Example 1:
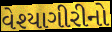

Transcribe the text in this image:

વેશ્યાગીરીનો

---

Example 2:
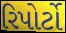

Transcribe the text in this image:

રિપોર્ટો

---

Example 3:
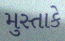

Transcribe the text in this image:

મુસ્તાકે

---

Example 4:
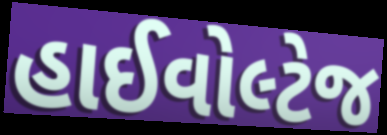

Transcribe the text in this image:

હાઈવોલ્ટેજ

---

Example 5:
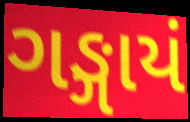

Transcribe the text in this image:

ગઙ્ગાયં